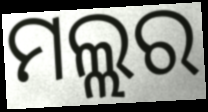
ମଲ୍ଲର